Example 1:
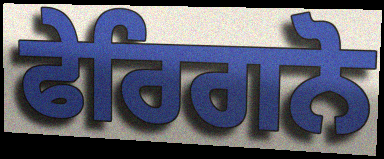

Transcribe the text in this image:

ਫੇਰਿਗਨੋ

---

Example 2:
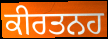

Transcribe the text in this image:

ਕੀਰਤਨਹ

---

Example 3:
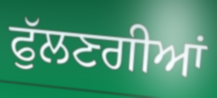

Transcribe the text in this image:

ਫੁੱਲਣਗੀਆਂ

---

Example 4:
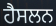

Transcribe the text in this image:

ਹੈਸਲਨ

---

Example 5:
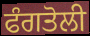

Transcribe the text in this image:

ਫੰਗਤੋਲੀ